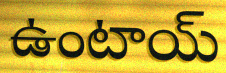
ఉంటాయ్